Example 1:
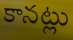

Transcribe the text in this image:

కానట్లు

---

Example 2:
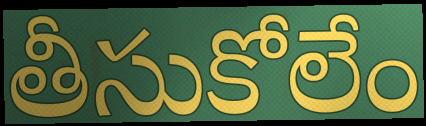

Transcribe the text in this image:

తీసుకోలేం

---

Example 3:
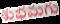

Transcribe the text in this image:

శుభమగు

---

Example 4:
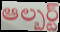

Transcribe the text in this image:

ఆల్బర్ట్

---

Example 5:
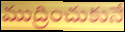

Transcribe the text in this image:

ముద్రించుకునే